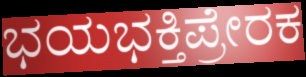
ಭಯಭಕ್ತಿಪ್ರೇರಕ